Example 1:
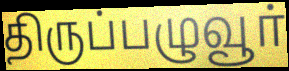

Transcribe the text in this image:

திருப்பழுவூர்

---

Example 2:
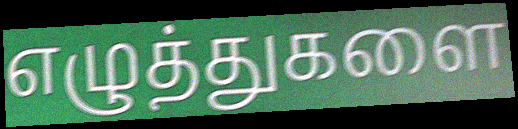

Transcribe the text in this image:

எழுத்துகளை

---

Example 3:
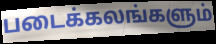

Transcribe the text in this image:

படைக்கலங்களும்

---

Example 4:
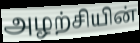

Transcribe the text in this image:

அழற்சியின்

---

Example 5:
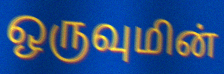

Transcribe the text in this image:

ஒருவுமின்